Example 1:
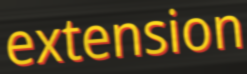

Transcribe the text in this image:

extension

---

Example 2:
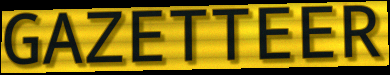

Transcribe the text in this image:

GAZETTEER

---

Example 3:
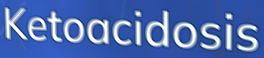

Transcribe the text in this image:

Ketoacidosis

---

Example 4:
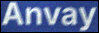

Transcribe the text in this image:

Anvay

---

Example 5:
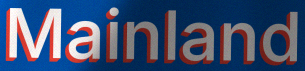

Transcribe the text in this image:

Mainland